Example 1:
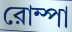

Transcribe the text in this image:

রোম্পা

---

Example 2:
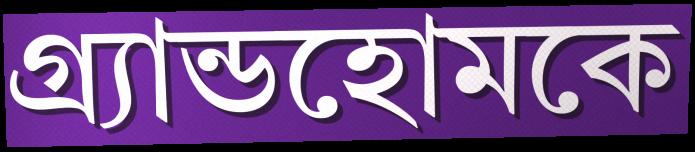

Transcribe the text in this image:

গ্র্যান্ডহোমকে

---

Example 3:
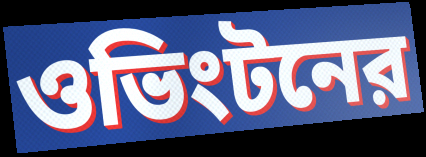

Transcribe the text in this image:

ওভিংটনের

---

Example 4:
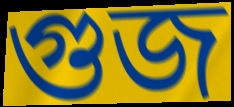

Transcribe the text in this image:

গুজ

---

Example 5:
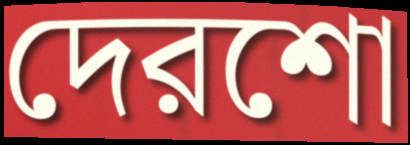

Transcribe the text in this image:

দেরশো